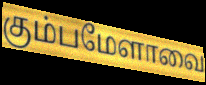
கும்பமேளாவை